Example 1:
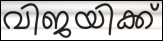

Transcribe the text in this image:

വിജയിക്ക്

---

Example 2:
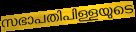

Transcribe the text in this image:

സഭാപതിപിള്ളയുടെ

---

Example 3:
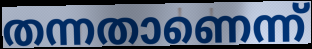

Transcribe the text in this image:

തന്നതാണെന്ന്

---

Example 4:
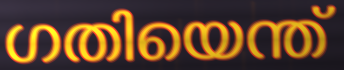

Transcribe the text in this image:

ഗതിയെന്ത്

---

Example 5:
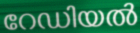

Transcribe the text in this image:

റേഡിയൽ